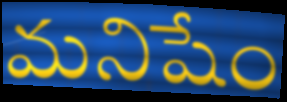
మనిషేం